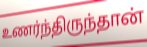
உணர்ந்திருந்தான்